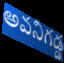
అవనిగడ్డ